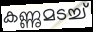
കണ്ണുമടച്ച്